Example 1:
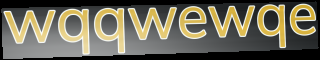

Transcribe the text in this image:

wqqwewqe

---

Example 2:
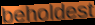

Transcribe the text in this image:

beholdest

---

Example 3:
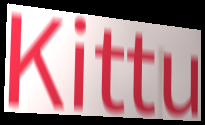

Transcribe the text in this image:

Kittu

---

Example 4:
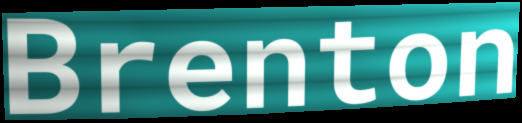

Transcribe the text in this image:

Brenton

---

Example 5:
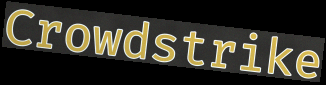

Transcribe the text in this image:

Crowdstrike